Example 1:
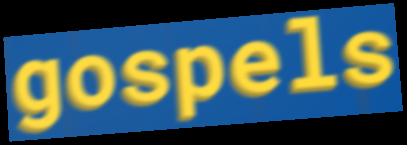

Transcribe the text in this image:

gospels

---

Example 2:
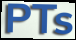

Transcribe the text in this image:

PTs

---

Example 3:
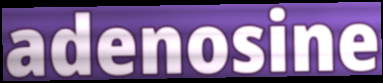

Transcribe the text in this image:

adenosine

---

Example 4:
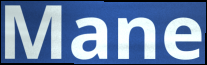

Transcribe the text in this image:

Mane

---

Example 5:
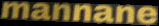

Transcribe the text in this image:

mannane